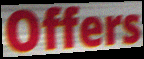
Offers